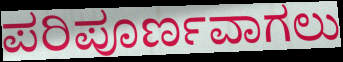
ಪರಿಪೂರ್ಣವಾಗಲು